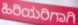
ಹಿರಿಯರಿಗಾಗಿ